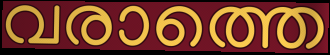
വരാത്തെ